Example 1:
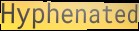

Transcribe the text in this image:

Hyphenated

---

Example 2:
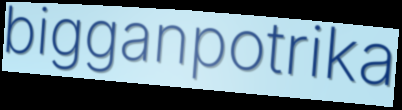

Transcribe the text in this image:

bigganpotrika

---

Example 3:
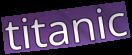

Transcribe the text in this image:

titanic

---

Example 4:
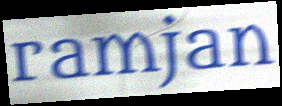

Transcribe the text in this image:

ramjan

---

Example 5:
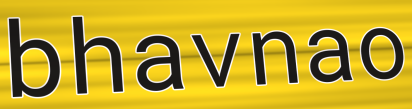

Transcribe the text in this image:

bhavnao